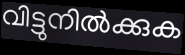
വിട്ടുനിൽക്കുക